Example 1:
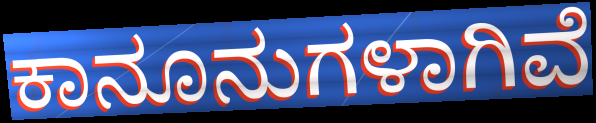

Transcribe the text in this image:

ಕಾನೂನುಗಳಾಗಿವೆ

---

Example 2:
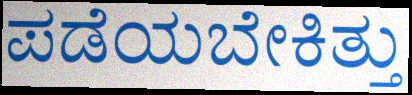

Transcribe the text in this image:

ಪಡೆಯಬೇಕಿತ್ತು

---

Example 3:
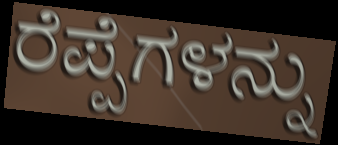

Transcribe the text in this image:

ರೆಪ್ಪೆಗಳನ್ನು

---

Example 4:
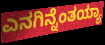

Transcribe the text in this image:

ಎನಗಿನ್ನೆಂತಯ್ಯಾ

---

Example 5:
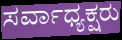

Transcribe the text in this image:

ಸರ್ವಾಧ್ಯಕ್ಷರು